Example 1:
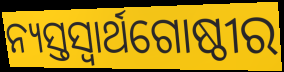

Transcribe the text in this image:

ନ୍ୟସ୍ତସ୍ୱାର୍ଥଗୋଷ୍ଠୀର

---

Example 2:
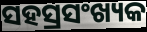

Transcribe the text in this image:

ସହସ୍ରସଂଖ୍ୟକ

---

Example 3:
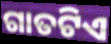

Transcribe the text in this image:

ଗାତଟିଏ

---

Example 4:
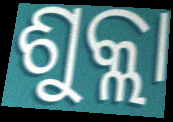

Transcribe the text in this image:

ଶୁକ୍ଲା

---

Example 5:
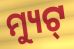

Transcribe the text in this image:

ମ୍ୟୁଟ୍